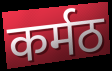
कर्मठ